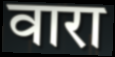
वारा